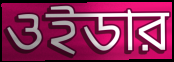
ওইডার